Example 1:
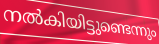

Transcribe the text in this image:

നൽകിയിട്ടുണ്ടെന്നും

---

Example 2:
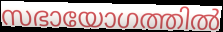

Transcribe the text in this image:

സഭായോഗത്തിൽ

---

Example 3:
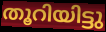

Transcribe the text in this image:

തൂറിയിട്ടു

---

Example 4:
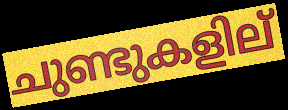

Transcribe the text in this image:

ചുണ്ടുകളില്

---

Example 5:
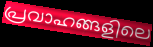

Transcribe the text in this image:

പ്രവാഹങ്ങളിലെ